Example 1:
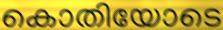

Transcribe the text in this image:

കൊതിയോടെ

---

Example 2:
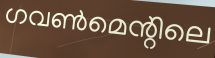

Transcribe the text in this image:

ഗവൺമെന്റിലെ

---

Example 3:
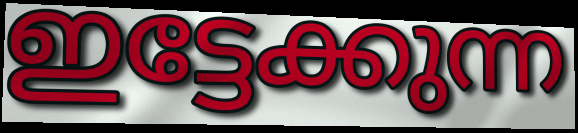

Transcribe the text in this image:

ഇട്ടേക്കുന്ന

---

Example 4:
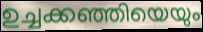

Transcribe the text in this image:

ഉച്ചക്കഞ്ഞിയെയും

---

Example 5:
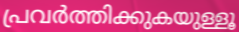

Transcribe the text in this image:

പ്രവർത്തിക്കുകയുള്ളൂ